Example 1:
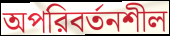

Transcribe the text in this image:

অপরিবর্তনশীল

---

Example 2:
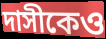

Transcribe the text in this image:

দাসীকেও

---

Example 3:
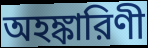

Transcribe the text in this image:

অহঙ্কারিণী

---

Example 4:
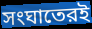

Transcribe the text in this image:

সংঘাতেরই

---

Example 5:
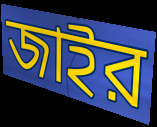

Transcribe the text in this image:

জাইর